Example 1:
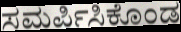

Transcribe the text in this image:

ಸಮರ್ಪಿಸಿಕೊಂಡ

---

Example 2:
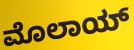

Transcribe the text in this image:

ಮೊಲಾಯ್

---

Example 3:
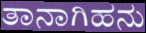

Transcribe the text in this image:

ತಾನಾಗಿಹನು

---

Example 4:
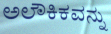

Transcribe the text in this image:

ಅಲೌಕಿಕವನ್ನು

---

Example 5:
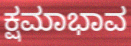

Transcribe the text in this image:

ಕ್ಷಮಾಭಾವ